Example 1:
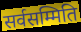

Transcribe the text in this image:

सर्वसम्मिति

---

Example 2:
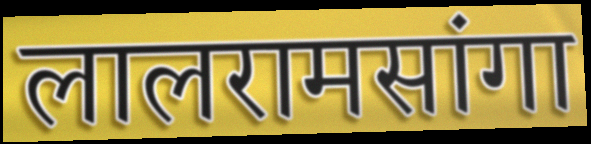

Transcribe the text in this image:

लालरामसांगा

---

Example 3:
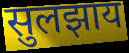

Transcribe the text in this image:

सुलझाय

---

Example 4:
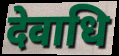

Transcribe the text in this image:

देवाधि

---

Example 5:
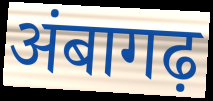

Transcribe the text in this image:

अंबागढ़